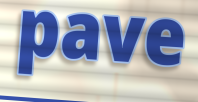
pave